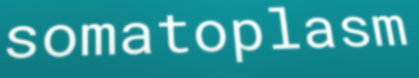
somatoplasm